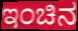
ಇಂಚಿನ